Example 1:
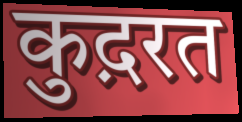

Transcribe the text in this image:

कुद़रत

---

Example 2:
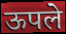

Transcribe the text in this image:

ऊपले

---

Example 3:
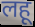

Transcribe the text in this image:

लहू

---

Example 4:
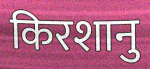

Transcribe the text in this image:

किरशानु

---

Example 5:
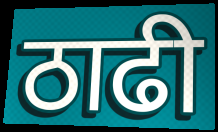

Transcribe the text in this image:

ठाढी